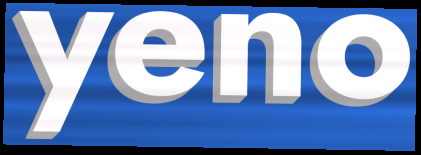
yeno